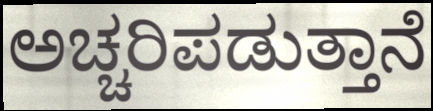
ಅಚ್ಚರಿಪಡುತ್ತಾನೆ